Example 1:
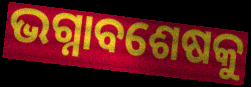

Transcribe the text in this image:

ଭଗ୍ନାବଶେଷକୁ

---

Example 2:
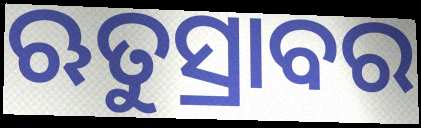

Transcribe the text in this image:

ଋତୁସ୍ରାବର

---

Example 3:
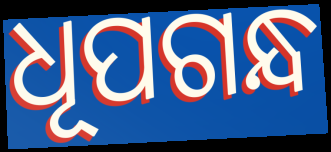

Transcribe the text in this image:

ଧୂପଗନ୍ଧ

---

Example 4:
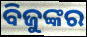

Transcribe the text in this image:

ବିଜୁଙ୍କର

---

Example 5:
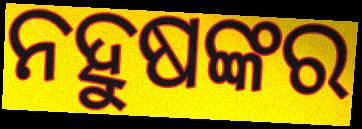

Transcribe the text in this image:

ନହୁଷଙ୍କର